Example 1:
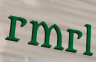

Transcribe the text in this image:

rmrl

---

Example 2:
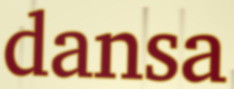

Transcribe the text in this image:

dansa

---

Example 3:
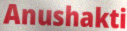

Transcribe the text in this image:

Anushakti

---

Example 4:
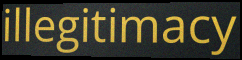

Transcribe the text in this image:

illegitimacy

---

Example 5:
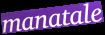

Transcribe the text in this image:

manatale